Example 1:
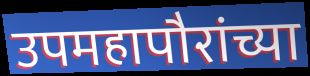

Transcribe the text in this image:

उपमहापौरांच्या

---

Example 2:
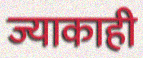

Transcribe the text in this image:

ज्याकाही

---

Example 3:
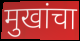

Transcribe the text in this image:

मुखांचा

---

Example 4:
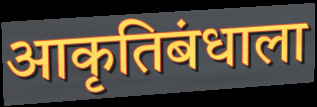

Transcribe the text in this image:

आकृतिबंधाला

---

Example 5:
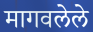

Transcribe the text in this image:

मागवलेले